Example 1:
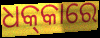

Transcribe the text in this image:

ଧକ୍‌କାରେ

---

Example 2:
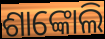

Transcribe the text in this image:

ଶାଙ୍କୋଲି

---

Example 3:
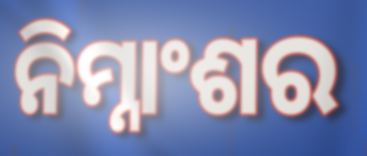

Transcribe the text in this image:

ନିମ୍ନାଂଶର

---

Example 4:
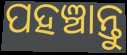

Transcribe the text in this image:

ପହଞ୍ଚାନ୍ତୁ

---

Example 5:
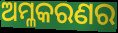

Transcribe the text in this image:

ଅମ୍ଳକରଣର